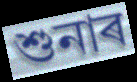
শুনাৰ